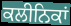
ਕਲੀਨਿਕਾਂ